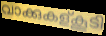
വാക്കുകള്കൂടി